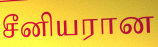
சீனியரான